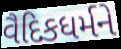
વૈદિકધર્મને